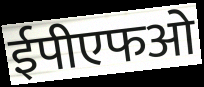
ईपीएफओ